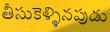
తీసుకెళ్ళినపుడు